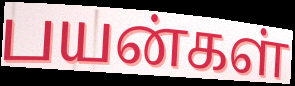
பயன்கள்